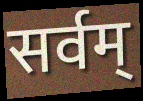
सर्वम्